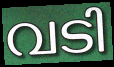
വടി